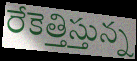
రేకెత్తిస్తున్న